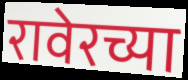
रावेरच्या